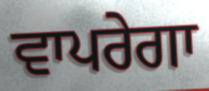
ਵਾਪਰੇਗਾ